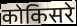
कोकिसरे